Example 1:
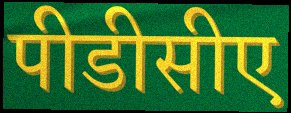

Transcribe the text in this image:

पीडीसीए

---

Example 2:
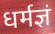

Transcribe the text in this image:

धर्मज्ञं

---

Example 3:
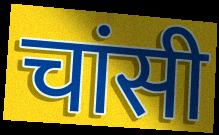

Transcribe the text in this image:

चांसी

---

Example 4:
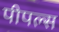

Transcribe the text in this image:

पीपल्स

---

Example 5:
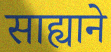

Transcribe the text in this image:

साह्याने